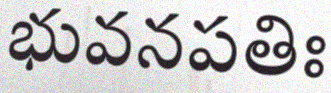
భువనపతిః